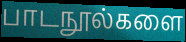
பாடநூல்களை